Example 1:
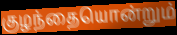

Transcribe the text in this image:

குழந்தையொன்றும்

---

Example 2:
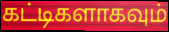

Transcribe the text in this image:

கட்டிகளாகவும்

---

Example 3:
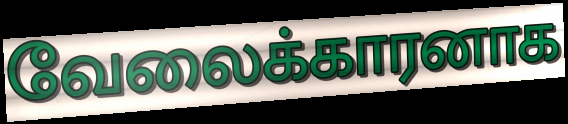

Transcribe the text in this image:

வேலைக்காரனாக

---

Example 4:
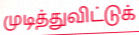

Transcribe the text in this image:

முடித்துவிட்டுக்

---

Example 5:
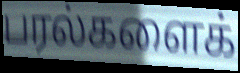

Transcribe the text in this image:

பரல்களைக்